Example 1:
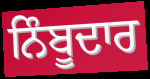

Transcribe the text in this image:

ਨਿੰਬੂਦਾਰ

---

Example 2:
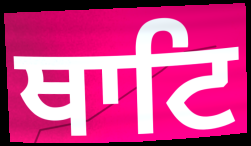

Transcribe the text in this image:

ਥਾਟਿ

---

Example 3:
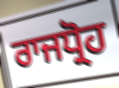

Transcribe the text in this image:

ਰਾਜਧ੍ਰੋਹ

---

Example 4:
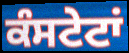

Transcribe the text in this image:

ਕੰਸਟੇਟਾਂ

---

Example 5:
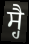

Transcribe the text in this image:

ਸ੍ਹੈ